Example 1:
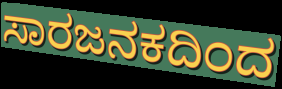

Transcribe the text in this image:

ಸಾರಜನಕದಿಂದ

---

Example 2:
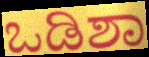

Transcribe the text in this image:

ಒಡಿಶಾ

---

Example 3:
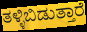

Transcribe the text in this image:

ತಳ್ಳಿಬಿಡುತ್ತಾರೆ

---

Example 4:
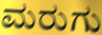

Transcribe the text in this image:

ಮರುಗು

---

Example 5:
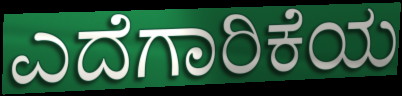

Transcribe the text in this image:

ಎದೆಗಾರಿಕೆಯ